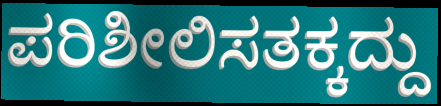
ಪರಿಶೀಲಿಸತಕ್ಕದ್ದು